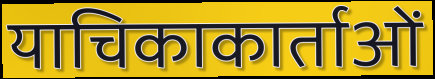
याचिकाकार्ताओं